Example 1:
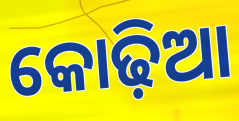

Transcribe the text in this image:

କୋଢ଼ିଆ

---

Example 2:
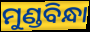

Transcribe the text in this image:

ମୁଣ୍ଡବିନ୍ଧା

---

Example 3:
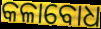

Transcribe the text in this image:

କଳାବୋଧ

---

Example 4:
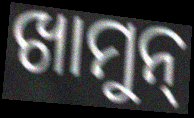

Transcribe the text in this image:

ଖାମୁନ୍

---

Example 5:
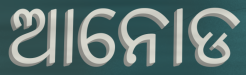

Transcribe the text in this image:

ଆନୋଡ